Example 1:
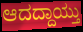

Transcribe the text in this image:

ಆದದ್ದಾಯ್ತು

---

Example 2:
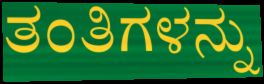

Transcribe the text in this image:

ತಂತಿಗಳನ್ನು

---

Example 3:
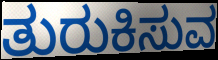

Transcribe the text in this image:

ತುರುಕಿಸುವ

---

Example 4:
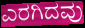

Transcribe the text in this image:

ಎರಗಿದವು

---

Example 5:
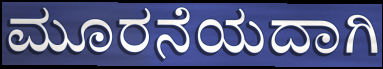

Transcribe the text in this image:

ಮೂರನೆಯದಾಗಿ